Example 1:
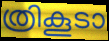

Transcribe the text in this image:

ത്രികൂടാ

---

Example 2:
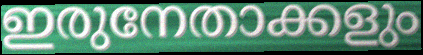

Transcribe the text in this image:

ഇരുനേതാക്കളും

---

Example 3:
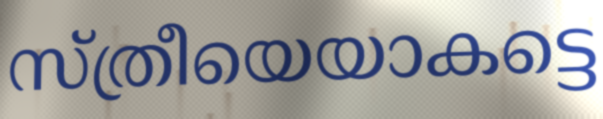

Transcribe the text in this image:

സ്ത്രീയെയാകട്ടെ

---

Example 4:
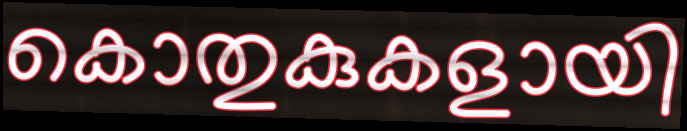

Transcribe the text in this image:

കൊതുകുകളായി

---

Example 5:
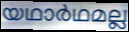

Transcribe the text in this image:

യഥാർഥമല്ല